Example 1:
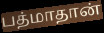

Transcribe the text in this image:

பத்மாதான்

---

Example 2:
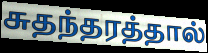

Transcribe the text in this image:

சுதந்தரத்தால்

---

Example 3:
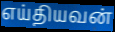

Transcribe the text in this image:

எய்தியவன்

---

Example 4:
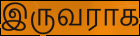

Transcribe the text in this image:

இருவராக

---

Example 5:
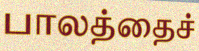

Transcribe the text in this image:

பாலத்தைச்